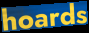
hoards